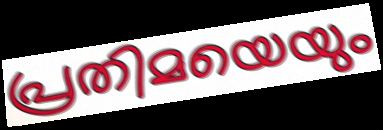
പ്രതിമയെയും